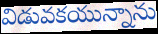
విడువకయున్నాను